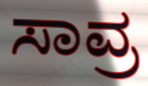
ಸಾವ್ರ